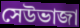
সেউভাজা